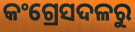
କଂଗ୍ରେସଦଳରୁ